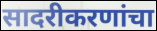
सादरीकरणांचा